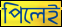
পিলেই